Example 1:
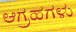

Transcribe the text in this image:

ಆಗ್ರಹಗಳು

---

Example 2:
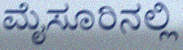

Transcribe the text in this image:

ಮೈಸೂರಿನಲ್ಲಿ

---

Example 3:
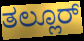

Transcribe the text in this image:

ತಲ್ಲೂರ್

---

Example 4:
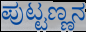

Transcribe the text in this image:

ಪುಟ್ಟಣ್ಣನ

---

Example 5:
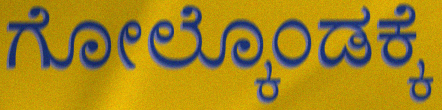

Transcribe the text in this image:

ಗೋಲ್ಕೊಂಡಕ್ಕೆ